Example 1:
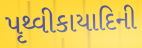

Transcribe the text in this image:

પૃથ્વીકાયાદિની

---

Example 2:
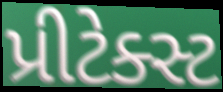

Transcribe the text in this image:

પ્રીટેક્સ્ટ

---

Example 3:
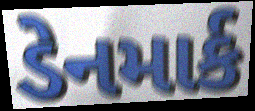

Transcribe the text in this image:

ડેનમાર્ક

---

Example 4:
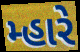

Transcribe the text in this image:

મ્હારે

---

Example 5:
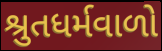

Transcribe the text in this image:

શ્રુતધર્મવાળો